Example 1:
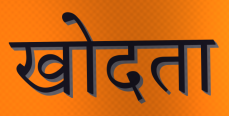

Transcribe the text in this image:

खोदता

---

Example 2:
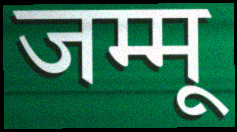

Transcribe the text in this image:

जम्मू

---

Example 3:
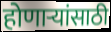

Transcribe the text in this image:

होणाऱ्यांसाठी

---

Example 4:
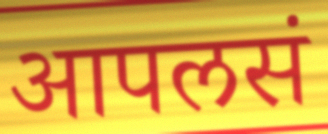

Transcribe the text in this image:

आपलसं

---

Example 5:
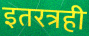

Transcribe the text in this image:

इतरत्रही